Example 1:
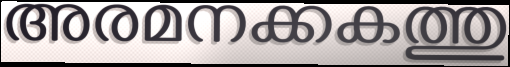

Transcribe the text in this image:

അരമനക്കകത്തു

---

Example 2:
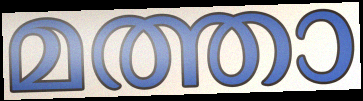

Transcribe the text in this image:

മത്താ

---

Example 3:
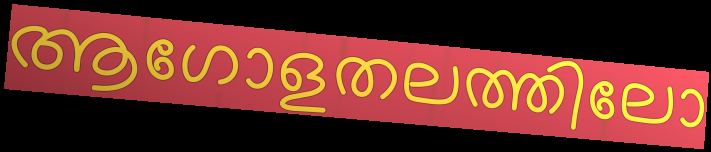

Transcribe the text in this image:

ആഗോളതലത്തിലോ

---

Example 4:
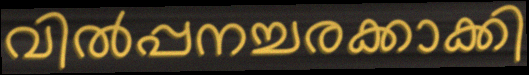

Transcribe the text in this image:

വിൽപ്പനച്ചരക്കാക്കി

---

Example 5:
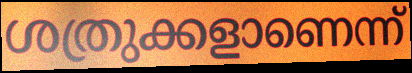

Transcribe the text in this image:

ശത്രുക്കളാണെന്ന്